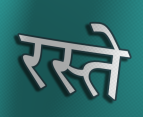
रस्ते